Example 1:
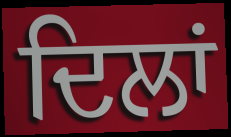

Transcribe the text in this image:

ਦਿਲਾਂ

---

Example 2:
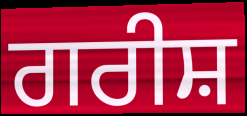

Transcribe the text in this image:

ਗਰੀਸ਼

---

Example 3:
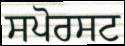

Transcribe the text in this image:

ਸਪੋਰਸਟ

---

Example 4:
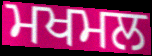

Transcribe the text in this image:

ਮਖਮਲ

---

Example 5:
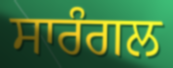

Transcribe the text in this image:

ਸਾਰੰਗਲ